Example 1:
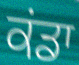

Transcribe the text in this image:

ਕਂਡਾ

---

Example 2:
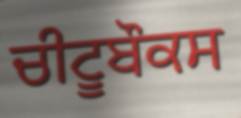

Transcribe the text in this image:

ਚੀਟੂਬੌਕਸ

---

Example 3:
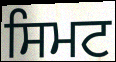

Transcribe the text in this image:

ਸਿਮਟ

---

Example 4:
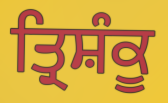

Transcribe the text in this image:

ਤ੍ਰਿਸ਼ੰਕੂ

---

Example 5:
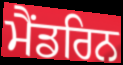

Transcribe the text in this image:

ਮੈਂਡਰਿਨ